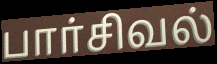
பார்சிவல்